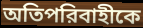
অতিপরিবাহীকে